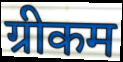
ग्रीकम